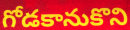
గోడకానుకొని